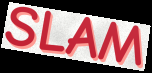
SLAM